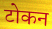
टोकन